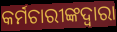
କର୍ମଚାରୀଙ୍କଦ୍ୱାରା